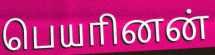
பெயரினன்